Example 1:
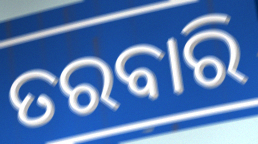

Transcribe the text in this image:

ତରବାରି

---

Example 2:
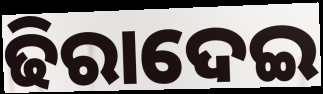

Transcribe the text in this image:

ଢିରାଦେଇ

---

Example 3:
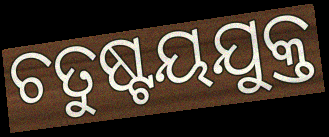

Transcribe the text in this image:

ଚତୁଷ୍ଟୟଯୁକ୍ତ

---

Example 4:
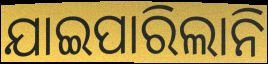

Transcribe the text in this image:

ଯାଇପାରିଲାନି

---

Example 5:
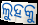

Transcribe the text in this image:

ଲୁହକୁ